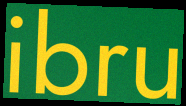
ibru